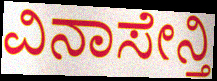
ವಿನಾಸೇನ್ತಿ